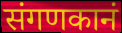
संगणकानं